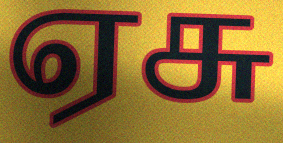
ஏசு